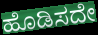
ಹೊಡಿಸದೇ